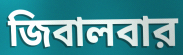
জিবালবার